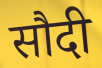
सौदी